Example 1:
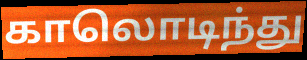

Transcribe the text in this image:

காலொடிந்து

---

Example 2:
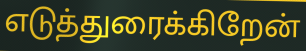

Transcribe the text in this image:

எடுத்துரைக்கிறேன்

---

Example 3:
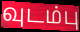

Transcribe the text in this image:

வுடம்பு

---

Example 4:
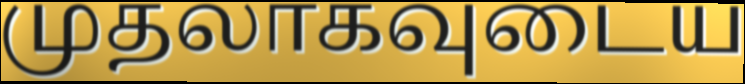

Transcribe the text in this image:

முதலாகவுடைய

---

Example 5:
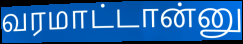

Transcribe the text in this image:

வரமாட்டான்னு